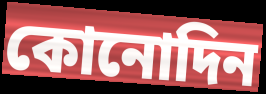
কোনোদিন